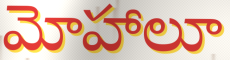
మోహాలూ